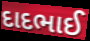
દાદભાઈ